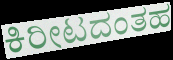
ಕಿರೀಟದಂತಹ